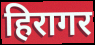
हिरागर